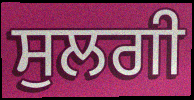
ਸੁਲਗੀ